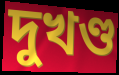
দুখণ্ড